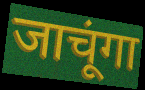
जाचूंगा